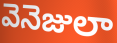
వెనెజులా